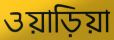
ওয়াড়িয়া